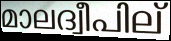
മാലദ്വീപില്